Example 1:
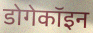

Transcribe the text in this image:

डोगेकॉइन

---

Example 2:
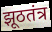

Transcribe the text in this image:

झूठतंत्र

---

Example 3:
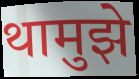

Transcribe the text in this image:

थामुझे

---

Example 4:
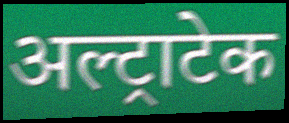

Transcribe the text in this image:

अल्‍ट्राटेक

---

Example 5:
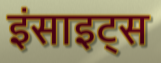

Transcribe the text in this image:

इंसाइट्स